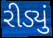
રીડ્યું